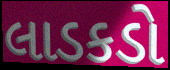
લાડકડો